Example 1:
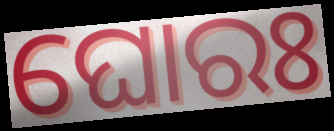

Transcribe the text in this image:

ଘୋରଃ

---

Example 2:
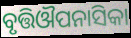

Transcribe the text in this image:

ବୃତ୍ତିଔପନାସିକା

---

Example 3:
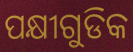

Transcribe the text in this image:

ପକ୍ଷୀଗୁଡିକ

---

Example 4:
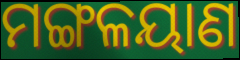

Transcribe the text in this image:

ମଙ୍ଗଳୟାଣ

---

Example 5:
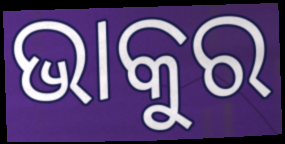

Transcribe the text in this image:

ଭାକୁର